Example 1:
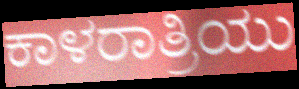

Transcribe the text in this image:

ಕಾಳರಾತ್ರಿಯು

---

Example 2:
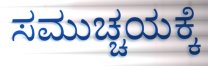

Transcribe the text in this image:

ಸಮುಚ್ಚಯಕ್ಕೆ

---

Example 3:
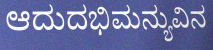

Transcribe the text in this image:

ಆದುದಭಿಮನ್ಯುವಿನ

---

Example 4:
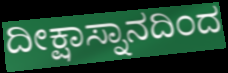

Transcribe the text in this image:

ದೀಕ್ಷಾಸ್ನಾನದಿಂದ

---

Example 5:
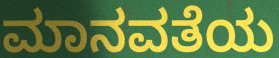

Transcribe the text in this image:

ಮಾನವತೆಯ